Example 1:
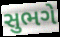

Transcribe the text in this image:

સુભગે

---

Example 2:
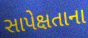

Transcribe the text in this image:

સાપેક્ષતાના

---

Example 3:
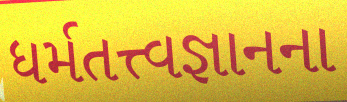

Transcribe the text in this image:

ધર્મતત્ત્વજ્ઞાનના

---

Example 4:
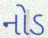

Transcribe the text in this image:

નોડ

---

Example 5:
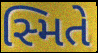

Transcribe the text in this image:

સ્મિતે